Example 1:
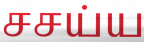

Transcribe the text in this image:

சசய்ய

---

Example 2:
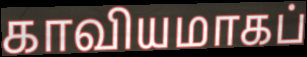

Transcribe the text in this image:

காவியமாகப்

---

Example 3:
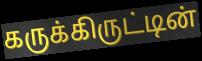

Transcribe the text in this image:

கருக்கிருட்டின்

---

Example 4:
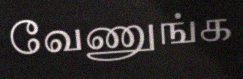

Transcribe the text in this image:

வேணுங்க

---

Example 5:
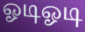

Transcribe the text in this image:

ஓடிஓடி